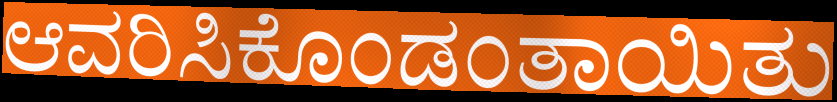
ಆವರಿಸಿಕೊಂಡಂತಾಯಿತು